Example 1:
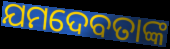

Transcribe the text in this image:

ଯମଦେବତାଙ୍କ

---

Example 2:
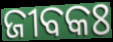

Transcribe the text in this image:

ଜୀବକଃ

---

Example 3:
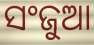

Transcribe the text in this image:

ସଂଜୁଆ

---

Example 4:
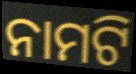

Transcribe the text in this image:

ନାମଟି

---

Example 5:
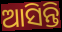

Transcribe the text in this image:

ଆସିନ୍ତି